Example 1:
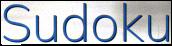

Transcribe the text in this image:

Sudoku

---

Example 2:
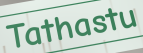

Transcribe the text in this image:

Tathastu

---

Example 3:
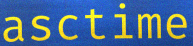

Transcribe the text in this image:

asctime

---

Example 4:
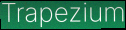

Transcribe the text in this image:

Trapezium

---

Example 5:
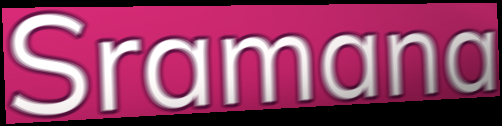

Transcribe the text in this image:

Sramana